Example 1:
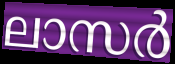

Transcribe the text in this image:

ലാസർ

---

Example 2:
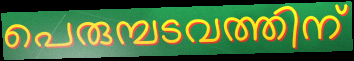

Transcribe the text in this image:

പെരുമ്പടവത്തിന്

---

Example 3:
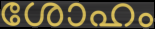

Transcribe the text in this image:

ശോഹം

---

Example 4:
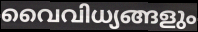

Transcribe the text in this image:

വൈവിധ്യങ്ങളും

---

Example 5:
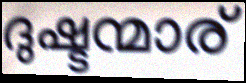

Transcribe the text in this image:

ദുഷ്ടന്മാര്